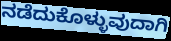
ನಡೆದುಕೊಳ್ಳುವುದಾಗಿ